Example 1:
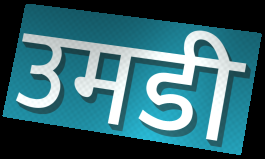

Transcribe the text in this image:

उमडी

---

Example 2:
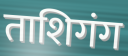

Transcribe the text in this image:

ताशिगंग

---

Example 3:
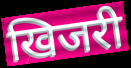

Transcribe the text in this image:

खिजरी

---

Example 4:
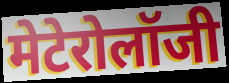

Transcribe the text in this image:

मेटेरोलॉजी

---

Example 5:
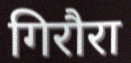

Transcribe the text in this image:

गिरौरा